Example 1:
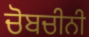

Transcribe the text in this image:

ਚੋਬਚੀਨੀ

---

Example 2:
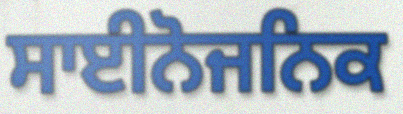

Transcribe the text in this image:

ਸਾਈਨੋਜਨਿਕ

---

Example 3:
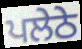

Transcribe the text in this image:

ਪਲੇਠੇ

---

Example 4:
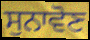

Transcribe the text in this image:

ਸੁਨਾਵੋਣ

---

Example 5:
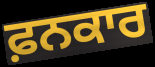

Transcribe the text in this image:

ਫ਼ਨਕਾਰ